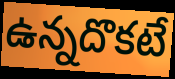
ఉన్నదొకటే